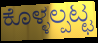
ಕೊಳ್ಳಲ್ಪಟ್ಟ